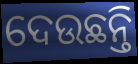
ଦେଉଛନ୍ତି